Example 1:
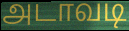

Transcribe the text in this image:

அடாவடி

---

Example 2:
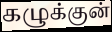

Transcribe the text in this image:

கழுக்குன்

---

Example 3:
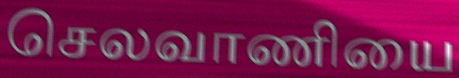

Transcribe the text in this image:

செலவாணியை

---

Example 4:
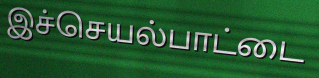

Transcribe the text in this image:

இச்செயல்பாட்டை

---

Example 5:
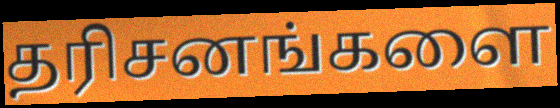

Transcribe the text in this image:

தரிசனங்களை